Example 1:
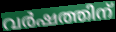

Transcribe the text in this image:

വർഷത്തിന്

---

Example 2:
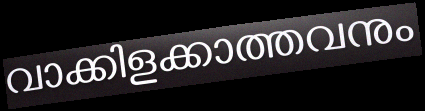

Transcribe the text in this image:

വാക്കിളക്കാത്തവനും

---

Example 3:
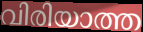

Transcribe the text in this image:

വിരിയാത്ത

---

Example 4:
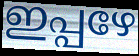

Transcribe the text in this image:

ഇപ്പഴേ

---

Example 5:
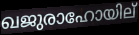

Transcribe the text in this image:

ഖജുരാഹോയില്